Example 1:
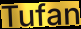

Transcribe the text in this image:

Tufan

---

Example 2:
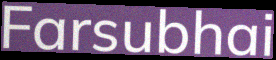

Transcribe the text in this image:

Farsubhai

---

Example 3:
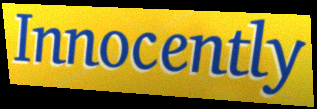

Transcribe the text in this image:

Innocently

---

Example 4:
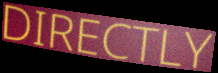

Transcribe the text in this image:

DIRECTLY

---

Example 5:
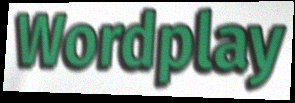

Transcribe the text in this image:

Wordplay